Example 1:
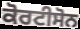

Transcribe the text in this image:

ਕੋਰਟੀਸੋਨ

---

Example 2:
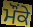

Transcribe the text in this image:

ਮੌੰਕੇ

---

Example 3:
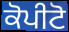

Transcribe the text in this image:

ਕੋਪੀਟੋ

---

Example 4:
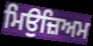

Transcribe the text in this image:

ਮਿਉਜ਼ਿਅਮ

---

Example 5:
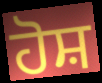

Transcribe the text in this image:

ਹੋਸ਼